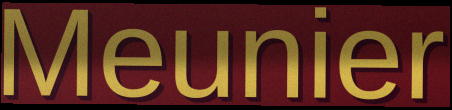
Meunier